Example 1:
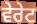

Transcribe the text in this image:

ਵੇਰੇਟ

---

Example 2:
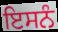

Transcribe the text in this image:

ਇਸਨੰ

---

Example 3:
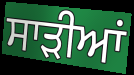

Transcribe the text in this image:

ਸਾਡ਼ੀਆਂ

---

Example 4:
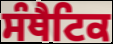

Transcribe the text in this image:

ਸੰਥੈਟਿਕ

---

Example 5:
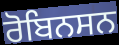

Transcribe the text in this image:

ਰੋਬਿਨਸਨ